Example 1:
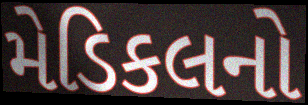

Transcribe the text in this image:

મેડિકલનો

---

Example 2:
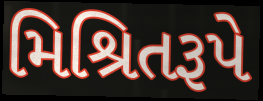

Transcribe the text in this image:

મિશ્રિતરૂપે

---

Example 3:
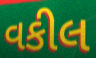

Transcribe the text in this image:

વકીલ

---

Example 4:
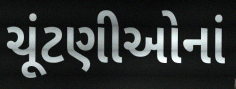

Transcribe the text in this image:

ચૂંટણીઓનાં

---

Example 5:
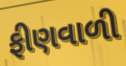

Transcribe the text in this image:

ફીણવાળી